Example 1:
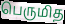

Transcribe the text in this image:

பெருமித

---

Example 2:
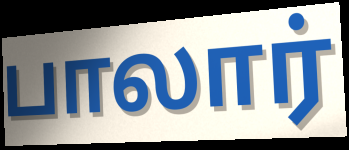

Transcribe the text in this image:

பாலார்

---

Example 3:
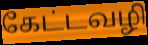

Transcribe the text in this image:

கேட்டவழி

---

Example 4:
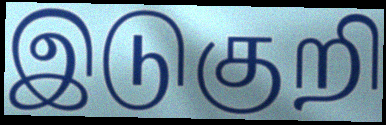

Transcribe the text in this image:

இடுகுறி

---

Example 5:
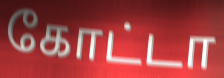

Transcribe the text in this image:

கோட்டா